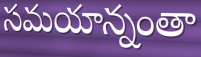
సమయాన్నంతా